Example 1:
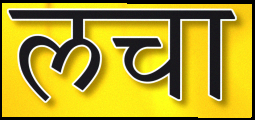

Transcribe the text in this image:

लचा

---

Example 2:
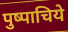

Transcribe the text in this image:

पुष्पाचिये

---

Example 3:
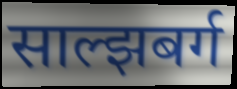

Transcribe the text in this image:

साल्झबर्ग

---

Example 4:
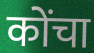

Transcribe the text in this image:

कोंचा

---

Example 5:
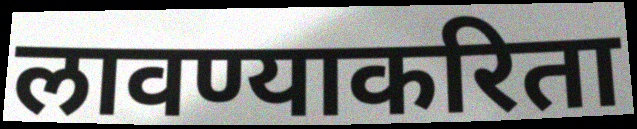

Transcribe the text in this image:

लावण्याकरिता